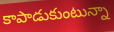
కాపాడుకుంటున్నా